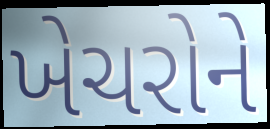
ખેચરોને